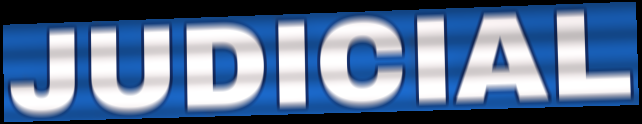
JUDICIAL